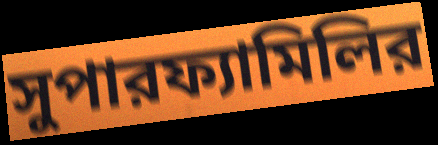
সুপারফ্যামিলির